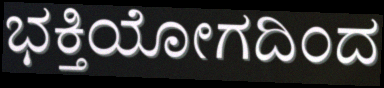
ಭಕ್ತಿಯೋಗದಿಂದ